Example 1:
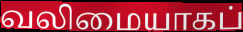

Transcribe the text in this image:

வலிமையாகப்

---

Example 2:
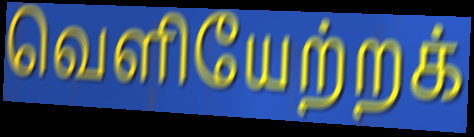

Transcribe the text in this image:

வெளியேற்றக்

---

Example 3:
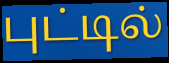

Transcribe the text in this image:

புட்டில்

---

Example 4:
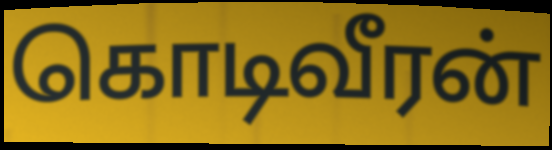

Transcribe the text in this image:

கொடிவீரன்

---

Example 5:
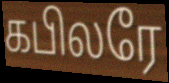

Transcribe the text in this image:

கபிலரே